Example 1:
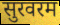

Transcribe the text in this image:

सुरवरम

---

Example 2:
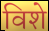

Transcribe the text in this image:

विशे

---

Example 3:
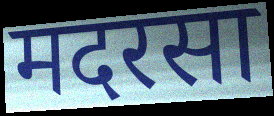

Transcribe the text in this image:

मदरसा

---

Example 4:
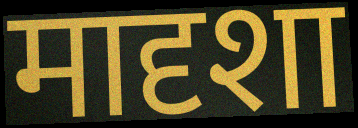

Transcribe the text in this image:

मादृशा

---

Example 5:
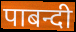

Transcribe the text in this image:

पाबन्दी